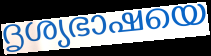
ദൃശ്യഭാഷയെ